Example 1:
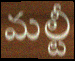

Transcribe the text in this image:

మల్టీ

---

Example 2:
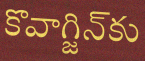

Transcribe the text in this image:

కొవాగ్జిన్‌కు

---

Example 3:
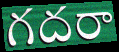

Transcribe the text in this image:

గదరా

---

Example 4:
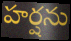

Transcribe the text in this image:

హర్షను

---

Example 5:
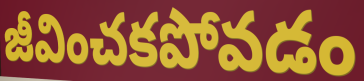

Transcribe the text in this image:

జీవించకపోవడం